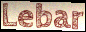
Lebar